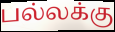
பல்லக்கு